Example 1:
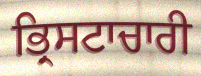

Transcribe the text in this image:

ਭ੍ਰਿਸਟਾਚਾਰੀ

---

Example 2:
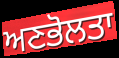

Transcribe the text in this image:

ਅਣਭੋਲਤਾ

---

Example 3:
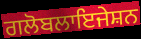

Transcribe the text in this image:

ਗਲੋਬਲਾਇਜੇਸ਼ਨ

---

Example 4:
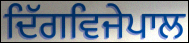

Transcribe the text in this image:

ਦਿੱਗਵਿਜੇਪਾਲ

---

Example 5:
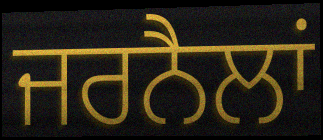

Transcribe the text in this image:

ਜਰਨੈਲਾਂ